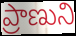
ప్రాణుని